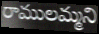
రాములమ్మని